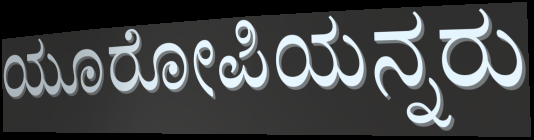
ಯೂರೋಪಿಯನ್ನರು